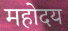
महोदय